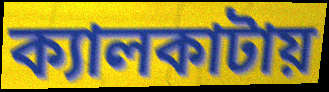
ক্যালকাটায়